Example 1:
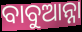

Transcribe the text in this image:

ବାବୁଆନ୍ନା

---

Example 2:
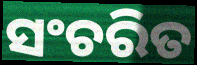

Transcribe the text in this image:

ସଂଚରିତ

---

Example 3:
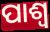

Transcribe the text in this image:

ପାଶ୍ୱ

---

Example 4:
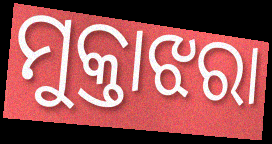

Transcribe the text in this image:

ମୁକ୍ତାଝରା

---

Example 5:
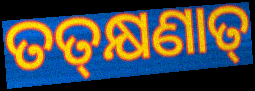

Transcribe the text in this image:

ତତ୍‍କ୍ଷଣାତ୍